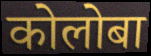
कोलोबा